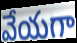
వేయగా